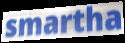
smartha